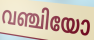
വഞ്ചിയോ